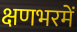
क्षणभरमें